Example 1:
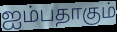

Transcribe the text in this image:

ஐம்பதாகும்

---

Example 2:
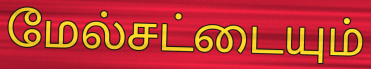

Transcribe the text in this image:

மேல்சட்டையும்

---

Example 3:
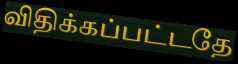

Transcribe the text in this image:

விதிக்கப்பட்டதே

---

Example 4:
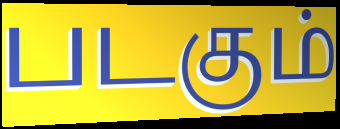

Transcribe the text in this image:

படகும்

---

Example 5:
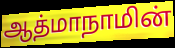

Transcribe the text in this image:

ஆத்மாநாமின்